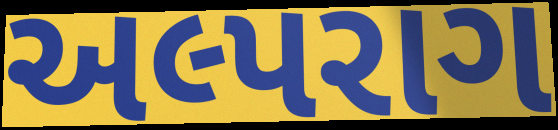
અલ્પરાગ